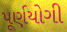
પૂર્ણયોગી